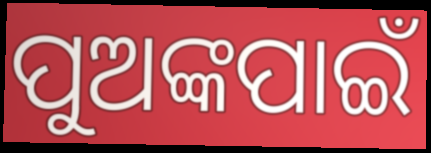
ପୁଅଙ୍କପାଇଁ